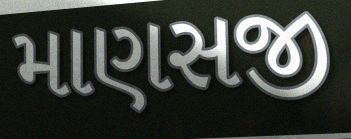
માણસજી